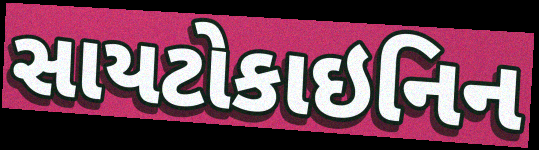
સાયટોકાઇનિન